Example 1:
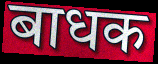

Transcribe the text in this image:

बाधक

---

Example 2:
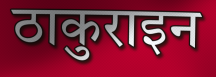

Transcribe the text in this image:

ठाकुराइन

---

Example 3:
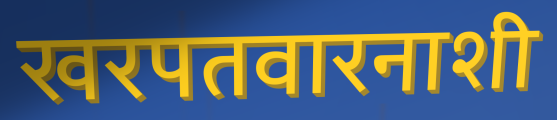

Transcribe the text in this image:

खरपतवारनाशी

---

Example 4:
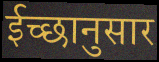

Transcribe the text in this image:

ईच्छानुसार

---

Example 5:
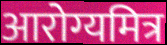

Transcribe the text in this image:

आरोग्यमित्र